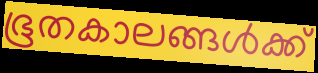
ഭൂതകാലങ്ങൾക്ക്